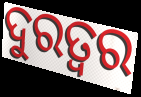
ଦୁରତ୍ଵର